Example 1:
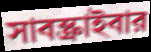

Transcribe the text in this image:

সাবস্ক্রাইবার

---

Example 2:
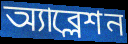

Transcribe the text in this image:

অ্যাব্লেশন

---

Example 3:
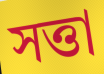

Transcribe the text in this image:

সত্তা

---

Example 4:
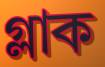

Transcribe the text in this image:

গ্লাক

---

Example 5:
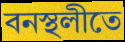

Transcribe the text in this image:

বনস্থলীতে